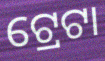
ଟ୍ରେଟା